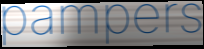
pampers